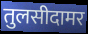
तुलसीदामर